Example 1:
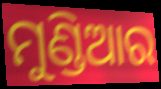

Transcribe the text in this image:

ମୁଣ୍ଡିଆର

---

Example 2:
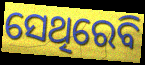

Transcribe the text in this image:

ସେଥିରେବି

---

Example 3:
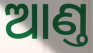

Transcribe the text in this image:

ଆଣ୍ତ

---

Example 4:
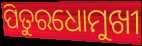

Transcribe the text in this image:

ପିତୁରଧୋମୁଖୀ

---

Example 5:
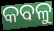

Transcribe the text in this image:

କବଳୁ